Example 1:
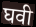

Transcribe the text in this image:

घवी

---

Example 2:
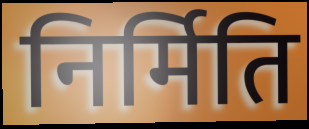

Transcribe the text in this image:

निर्मिति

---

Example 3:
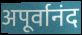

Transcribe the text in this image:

अपूर्वानंद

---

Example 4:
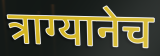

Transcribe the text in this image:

त्राग्यानेच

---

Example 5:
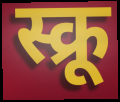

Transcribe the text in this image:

स्क्रू